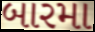
બારમા